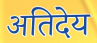
अतिदेय